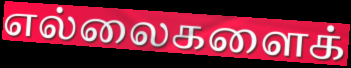
எல்லைகளைக்